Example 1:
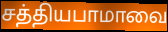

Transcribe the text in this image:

சத்தியபாமாவை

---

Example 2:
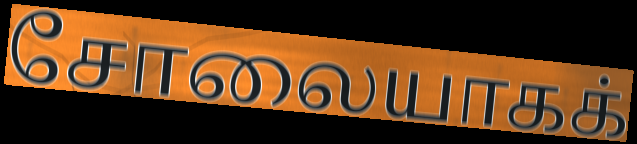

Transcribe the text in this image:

சோலையாகக்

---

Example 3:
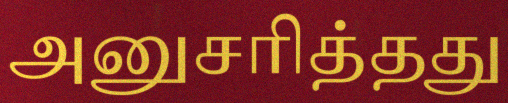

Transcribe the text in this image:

அனுசரித்தது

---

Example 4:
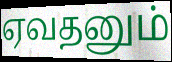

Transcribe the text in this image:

ஏவதனும்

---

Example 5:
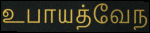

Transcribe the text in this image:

உபாயத்வேந